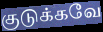
குடுக்கவே